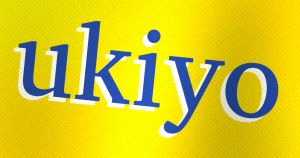
ukiyo